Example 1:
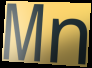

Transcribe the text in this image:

Mn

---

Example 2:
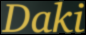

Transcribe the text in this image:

Daki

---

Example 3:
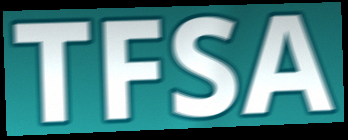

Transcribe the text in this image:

TFSA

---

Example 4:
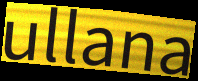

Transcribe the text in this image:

ullana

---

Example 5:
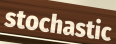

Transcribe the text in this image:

stochastic